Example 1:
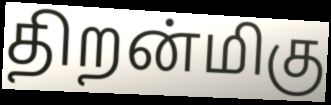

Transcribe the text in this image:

திறன்மிகு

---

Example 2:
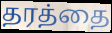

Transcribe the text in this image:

தரத்தை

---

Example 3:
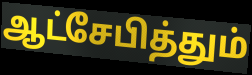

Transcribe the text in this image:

ஆட்சேபித்தும்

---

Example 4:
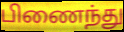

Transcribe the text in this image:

பிணைந்து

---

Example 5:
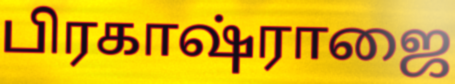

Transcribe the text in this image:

பிரகாஷ்ராஜை